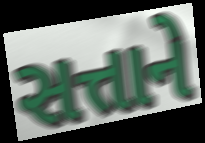
સત્તાને